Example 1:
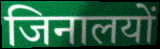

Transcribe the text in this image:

जिनालयों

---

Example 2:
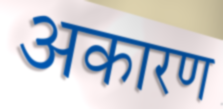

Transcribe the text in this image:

अकारण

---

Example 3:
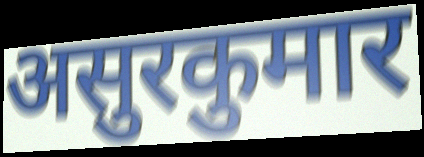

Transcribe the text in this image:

असुरकुमार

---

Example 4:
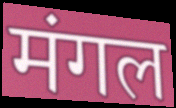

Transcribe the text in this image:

मंगल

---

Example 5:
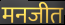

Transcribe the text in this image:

मनजीत